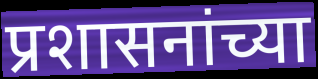
प्रशासनांच्या